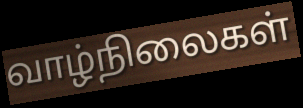
வாழ்நிலைகள்